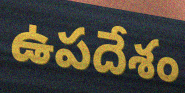
ఉపదేశం